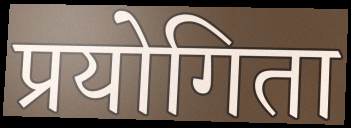
प्रयोगिता